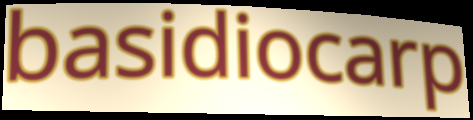
basidiocarp